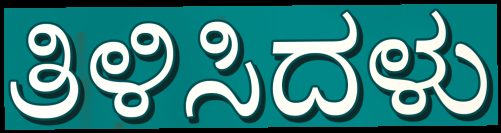
ತಿಳಿಸಿದಳು